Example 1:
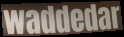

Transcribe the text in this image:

waddedar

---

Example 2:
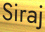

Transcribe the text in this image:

Siraj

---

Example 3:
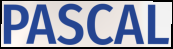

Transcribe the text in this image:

PASCAL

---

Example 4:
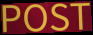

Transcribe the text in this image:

POST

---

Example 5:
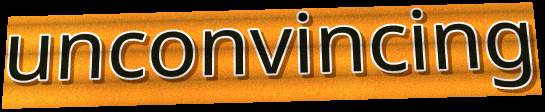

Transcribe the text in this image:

unconvincing